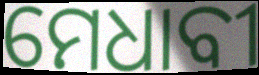
ମେଧାବୀ